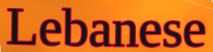
Lebanese